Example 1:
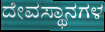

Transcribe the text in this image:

ದೇವಸ್ಥಾನಗಳ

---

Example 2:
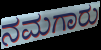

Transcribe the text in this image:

ನಮಗಾರು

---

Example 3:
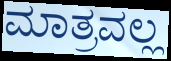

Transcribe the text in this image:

ಮಾತ್ರವಲ್ಲ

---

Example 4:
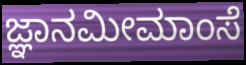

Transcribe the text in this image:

ಜ್ಞಾನಮೀಮಾಂಸೆ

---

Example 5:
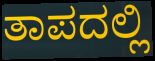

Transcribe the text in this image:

ತಾಪದಲ್ಲಿ